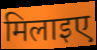
मिलाइए